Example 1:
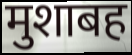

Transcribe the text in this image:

मुशाबह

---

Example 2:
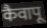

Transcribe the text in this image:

कैवापू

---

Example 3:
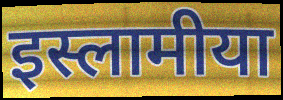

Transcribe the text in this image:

इस्लामीया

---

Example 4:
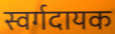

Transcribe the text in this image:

स्वर्गदायक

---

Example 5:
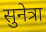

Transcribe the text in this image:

सुनेत्रा